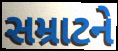
સમ્રાટને